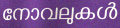
നോവലുകൾ